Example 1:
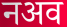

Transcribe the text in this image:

नअव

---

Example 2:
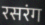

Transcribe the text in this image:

रसरंग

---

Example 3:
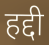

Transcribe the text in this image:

हद्दी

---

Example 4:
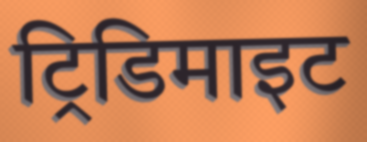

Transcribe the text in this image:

ट्रिडिमाइट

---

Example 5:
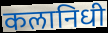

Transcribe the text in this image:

कलानिधी